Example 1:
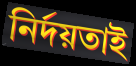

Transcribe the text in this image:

নির্দয়তাই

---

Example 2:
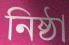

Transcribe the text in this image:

নিষ্ঠা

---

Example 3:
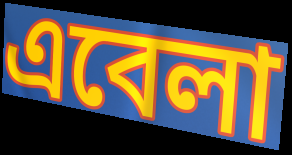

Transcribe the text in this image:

এবেলা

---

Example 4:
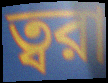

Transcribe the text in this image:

ত্বরা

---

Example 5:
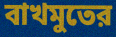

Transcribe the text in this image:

বাখমুতের